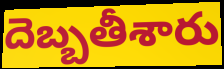
దెబ్బతీశారు